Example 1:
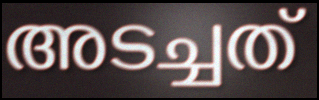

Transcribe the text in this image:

അടച്ചത്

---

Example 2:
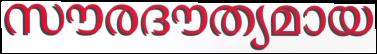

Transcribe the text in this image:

സൗരദൗത്യമായ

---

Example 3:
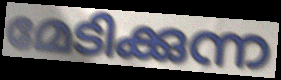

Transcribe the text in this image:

മേടിക്കുന്ന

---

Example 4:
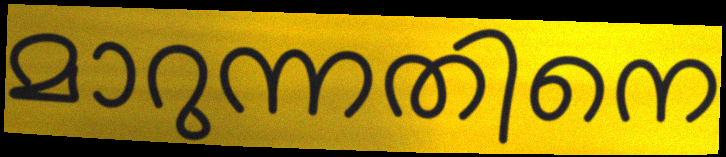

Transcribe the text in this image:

മാറുന്നതിനെ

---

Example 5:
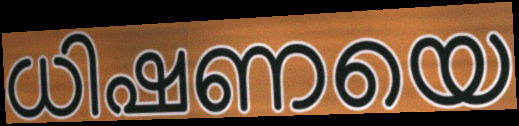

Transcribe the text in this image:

ധിഷണയെ